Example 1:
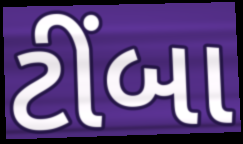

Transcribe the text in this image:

ટીંબા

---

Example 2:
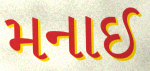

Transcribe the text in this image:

મનાઈ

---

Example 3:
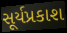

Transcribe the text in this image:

સૂર્યપ્રકાશ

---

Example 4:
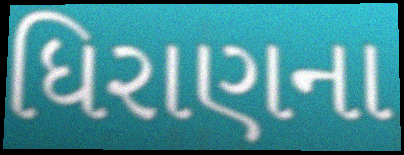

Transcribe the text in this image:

ધિરાણના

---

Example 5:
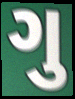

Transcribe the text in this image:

ગુ